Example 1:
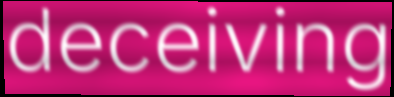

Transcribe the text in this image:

deceiving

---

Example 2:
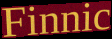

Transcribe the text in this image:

Finnic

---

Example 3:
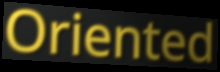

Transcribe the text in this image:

Oriented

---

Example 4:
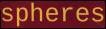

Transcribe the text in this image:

spheres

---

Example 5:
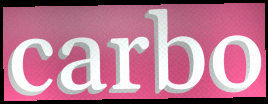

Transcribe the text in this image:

carbo